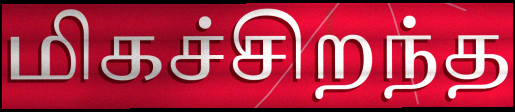
மிகச்சிறந்த